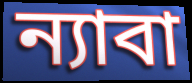
ন্যাবা